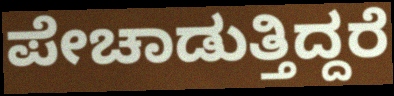
ಪೇಚಾಡುತ್ತಿದ್ದರೆ